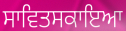
ਸਾਵਿਤਸਕਾਇਆ